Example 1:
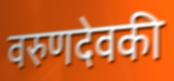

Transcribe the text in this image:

वरुणदेवकी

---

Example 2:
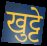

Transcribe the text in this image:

खुट्टे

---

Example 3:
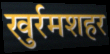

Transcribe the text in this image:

खुर्रमशहर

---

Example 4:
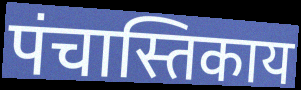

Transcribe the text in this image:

पंचास्तिकाय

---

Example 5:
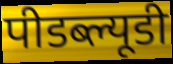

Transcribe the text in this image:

पीडब्ल्यूडी